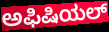
ಅಫಿಷಿಯಲ್